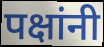
पक्षांनी